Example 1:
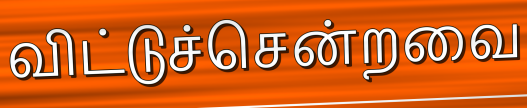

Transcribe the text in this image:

விட்டுச்சென்றவை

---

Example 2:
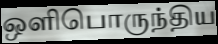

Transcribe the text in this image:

ஒளிபொருந்திய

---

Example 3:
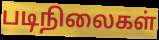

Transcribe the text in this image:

படிநிலைகள்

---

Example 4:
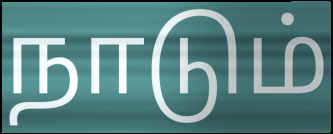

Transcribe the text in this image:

நாடும்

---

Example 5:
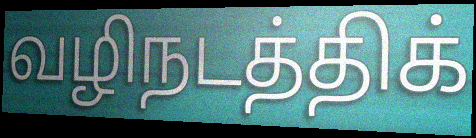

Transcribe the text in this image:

வழிநடத்திக்